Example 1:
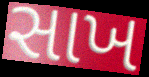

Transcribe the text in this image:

સાખ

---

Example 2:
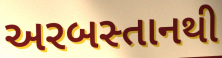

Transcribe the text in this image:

અરબસ્તાનથી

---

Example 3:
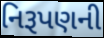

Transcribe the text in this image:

નિરૂપણની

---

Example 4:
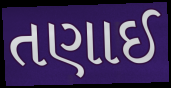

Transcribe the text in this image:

તણાઈ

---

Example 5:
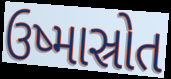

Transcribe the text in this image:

ઉષ્માસ્રોત